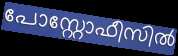
പോസ്റ്റോഫീസിൽ